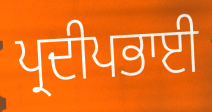
ਪ੍ਰਦੀਪਭਾਈ